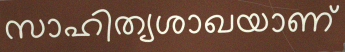
സാഹിത്യശാഖയാണ്